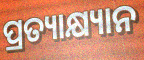
ପ୍ରତ୍ୟାକ୍ଷ୍ୟାନ